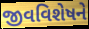
જીવવિશેષને